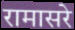
रामासरे